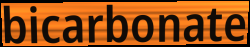
bicarbonate